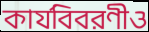
কার্যবিবরণীও